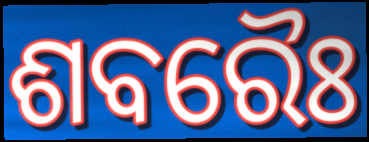
ଶବରୈଃ